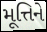
મૂત્તિને